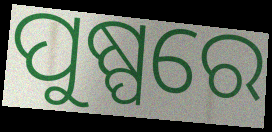
ପୁଷ୍ପରେ